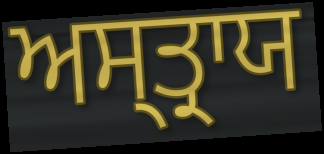
ਅਸ੍ਤ੍ਰਾਯ